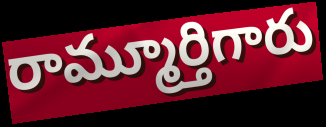
రామ్మూర్తిగారు